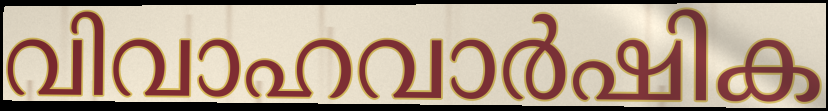
വിവാഹവാർഷിക